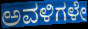
ಅವಳಿಗಳೇ